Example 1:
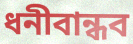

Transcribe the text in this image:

ধনীবান্ধব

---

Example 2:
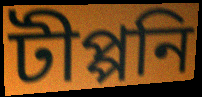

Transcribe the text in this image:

টীপ্পনি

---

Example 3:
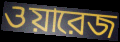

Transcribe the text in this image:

ওয়ারেজ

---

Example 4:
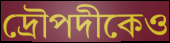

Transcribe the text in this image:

দ্রৌপদীকেও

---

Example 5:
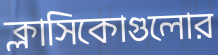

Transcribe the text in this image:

ক্লাসিকোগুলোর